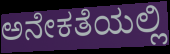
ಅನೇಕತೆಯಲ್ಲಿ